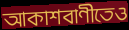
আকাশবাণীতেও